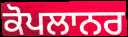
ਕੋਪਲਾਨਰ